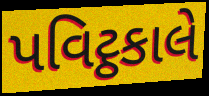
પવિટ્ઠકાલે